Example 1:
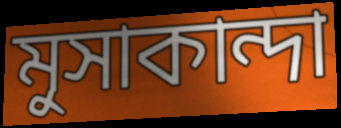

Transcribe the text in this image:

মুসাকান্দা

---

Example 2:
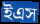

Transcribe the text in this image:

ইএস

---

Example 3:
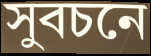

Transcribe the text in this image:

সুবচনে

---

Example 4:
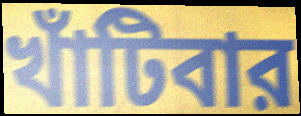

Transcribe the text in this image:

খাঁটিবার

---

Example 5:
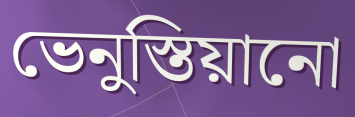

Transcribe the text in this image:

ভেনুস্তিয়ানো